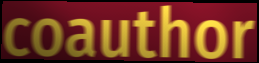
coauthor